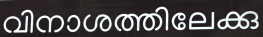
വിനാശത്തിലേക്കു